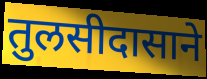
तुलसीदासाने